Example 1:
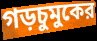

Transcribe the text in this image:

গড়চুমুকের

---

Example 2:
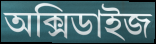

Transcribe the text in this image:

অক্সিডাইজ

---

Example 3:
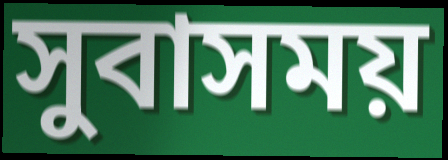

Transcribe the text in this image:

সুবাসময়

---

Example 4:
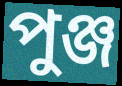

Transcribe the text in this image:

পুঞ্জ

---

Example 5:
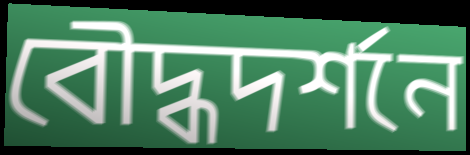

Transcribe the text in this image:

বৌদ্ধদর্শনে